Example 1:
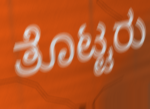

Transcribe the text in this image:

ತೊಟ್ಟರು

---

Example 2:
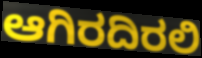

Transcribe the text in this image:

ಆಗಿರದಿರಲಿ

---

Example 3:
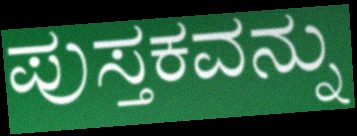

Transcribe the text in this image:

ಪುಸ್ತಕವನ್ನು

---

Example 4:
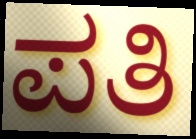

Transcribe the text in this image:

ಪತಿ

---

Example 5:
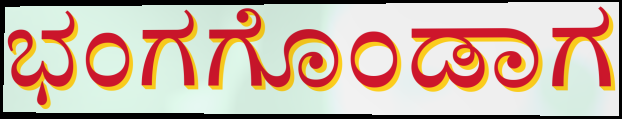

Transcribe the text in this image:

ಭಂಗಗೊಂಡಾಗ